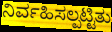
ನಿರ್ವಹಿಸಲ್ಪಟ್ಟಿತು